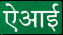
ऐआई